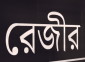
রেজীর